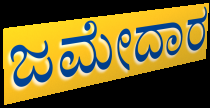
ಜಮೇದಾರ